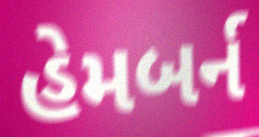
હેમબર્ન